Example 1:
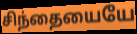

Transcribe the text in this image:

சிந்தையையே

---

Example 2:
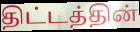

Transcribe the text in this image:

திட்டத்தின்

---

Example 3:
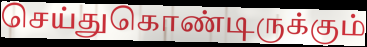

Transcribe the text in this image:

செய்துகொண்டிருக்கும்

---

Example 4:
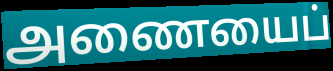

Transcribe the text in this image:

அணையைப்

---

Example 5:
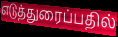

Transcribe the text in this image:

எடுத்துரைப்பதில்